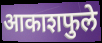
आकाशफुले